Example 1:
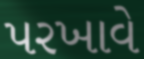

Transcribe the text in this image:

પરખાવે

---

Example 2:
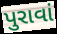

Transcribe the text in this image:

પુરાવાં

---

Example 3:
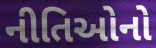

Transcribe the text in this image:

નીતિઓનો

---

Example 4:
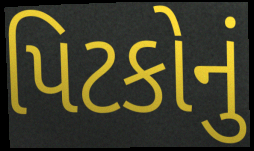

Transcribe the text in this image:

પિટકોનું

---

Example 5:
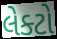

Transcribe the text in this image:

લેક્ટો